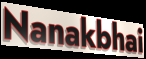
Nanakbhai